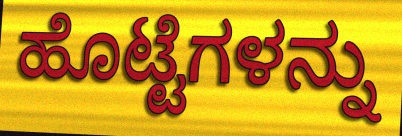
ಹೊಟ್ಟೆಗಳನ್ನು